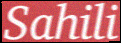
Sahili